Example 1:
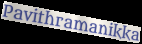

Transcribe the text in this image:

Pavithramanikka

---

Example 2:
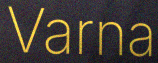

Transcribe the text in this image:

Varna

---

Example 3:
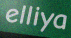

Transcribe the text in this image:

elliya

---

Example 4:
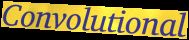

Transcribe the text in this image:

Convolutional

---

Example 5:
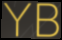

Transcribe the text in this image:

YB